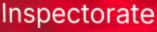
Inspectorate